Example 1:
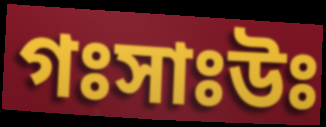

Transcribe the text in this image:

গঃসাঃউঃ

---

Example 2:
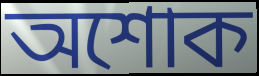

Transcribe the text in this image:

অশোক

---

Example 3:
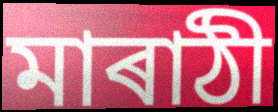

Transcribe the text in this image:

মাৰাঠী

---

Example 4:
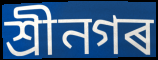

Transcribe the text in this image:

শ্ৰীনগৰ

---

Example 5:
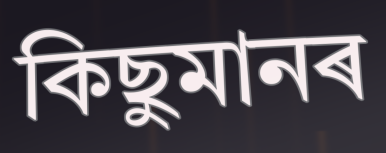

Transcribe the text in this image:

কিছুমানৰ